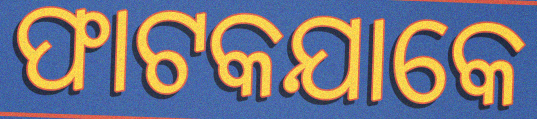
ଫାଟକଯାକେ